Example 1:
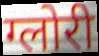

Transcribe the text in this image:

ग्लोरी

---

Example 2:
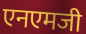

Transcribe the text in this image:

एनएमजी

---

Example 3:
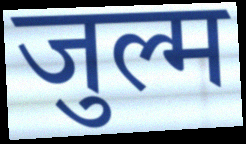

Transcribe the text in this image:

जुल्म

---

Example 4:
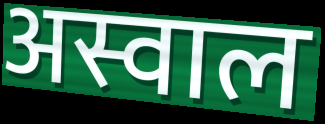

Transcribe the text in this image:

अस्वाल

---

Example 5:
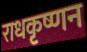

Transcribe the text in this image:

राधकृष्णन